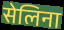
सेलिना